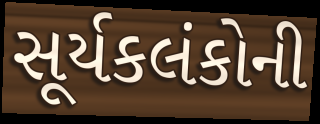
સૂર્યકલંકોની